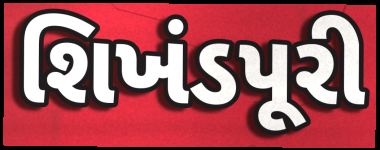
શિખંડપૂરી